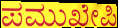
ಪಮುಖೇಪಿ